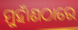
ମୁହାଁଣଠାରେ